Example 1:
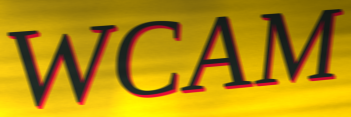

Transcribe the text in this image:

WCAM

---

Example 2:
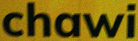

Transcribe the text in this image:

chawi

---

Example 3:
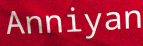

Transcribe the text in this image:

Anniyan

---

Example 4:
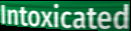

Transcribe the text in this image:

Intoxicated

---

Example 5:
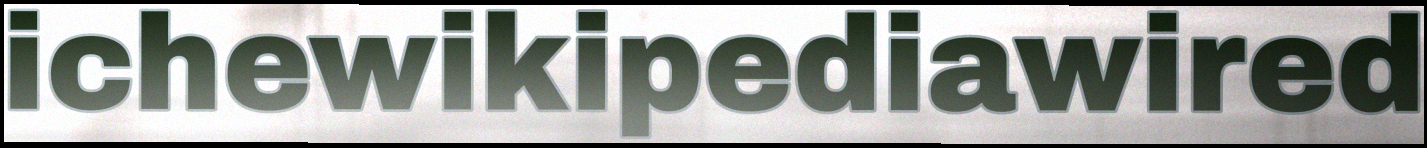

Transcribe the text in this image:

ichewikipediawired